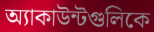
অ্যাকাউন্টগুলিকে